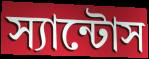
স্যান্টোস